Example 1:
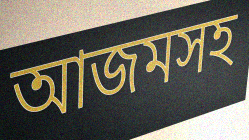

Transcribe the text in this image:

আজমসহ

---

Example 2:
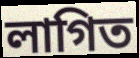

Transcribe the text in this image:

লাগিত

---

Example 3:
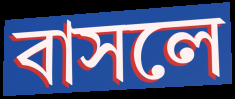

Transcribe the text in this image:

বাসলে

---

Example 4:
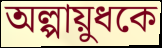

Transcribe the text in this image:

অল্পায়ুধকে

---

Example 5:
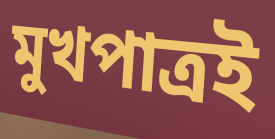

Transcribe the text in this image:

মুখপাত্রই